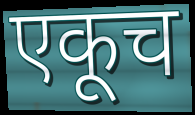
एकूच